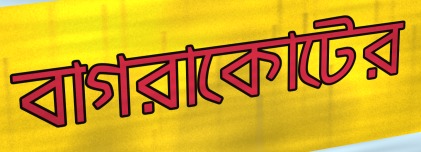
বাগরাকোটের